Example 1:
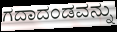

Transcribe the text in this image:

ಗದಾದಂಡವನ್ನು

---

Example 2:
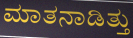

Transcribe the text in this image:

ಮಾತನಾಡಿತ್ತು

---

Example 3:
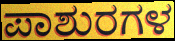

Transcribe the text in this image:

ಪಾಶುರಗಳ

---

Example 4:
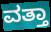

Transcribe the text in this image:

ವತ್ತಾ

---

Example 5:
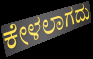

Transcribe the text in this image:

ಕೇಳಲಾಗದು